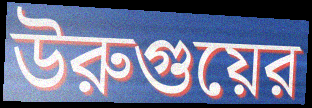
উরুগুয়ের